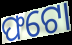
ଫଟୋ